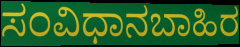
ಸಂವಿಧಾನಬಾಹಿರ